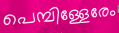
പെമ്പിള്ളേരേം